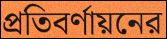
প্রতিবর্ণায়নের